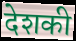
देशकी